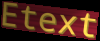
Etext